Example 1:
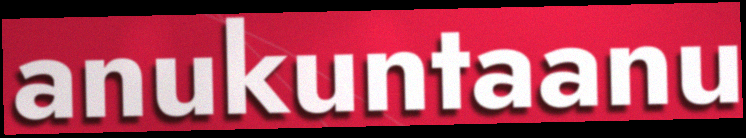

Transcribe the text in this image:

anukuntaanu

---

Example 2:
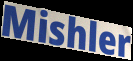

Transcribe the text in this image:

Mishler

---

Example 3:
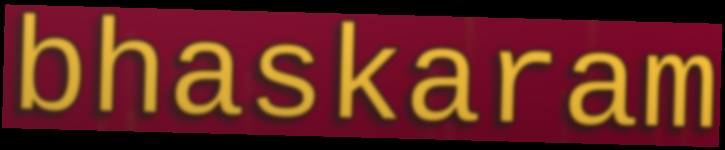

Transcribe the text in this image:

bhaskaram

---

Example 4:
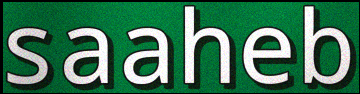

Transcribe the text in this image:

saaheb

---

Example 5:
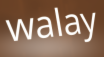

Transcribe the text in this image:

walay